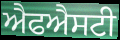
ਐਫਐਸਟੀ